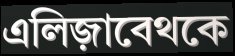
এলিজ়াবেথকে